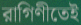
রাগিণীতেই